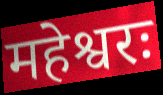
महेश्वरः